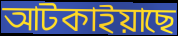
আটকাইয়াছে